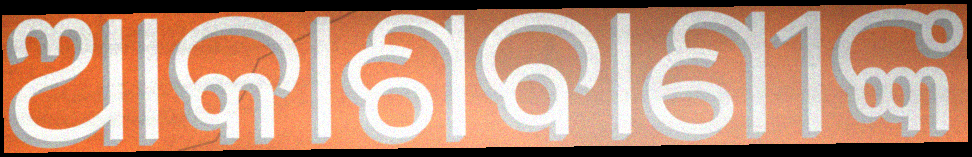
ଆକାଶବାଣୀଙ୍କ